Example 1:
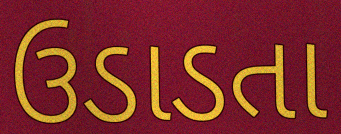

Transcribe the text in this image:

ઉડાડતા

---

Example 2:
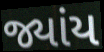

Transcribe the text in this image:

જ્યાંય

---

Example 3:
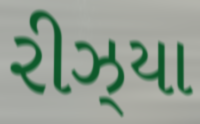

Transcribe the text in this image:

રીઝ્યા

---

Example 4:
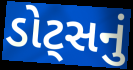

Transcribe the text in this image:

ડોટ્સનું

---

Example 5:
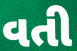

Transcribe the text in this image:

વતી